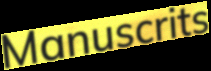
Manuscrits